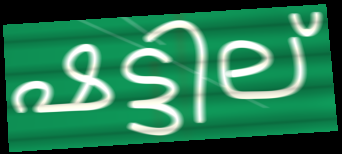
ഷട്ടില്